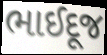
ભાઈદૂજ